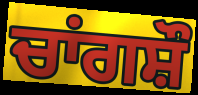
ਚਾਂਗਸ਼ੌ